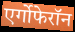
एर्गोफेरॉन